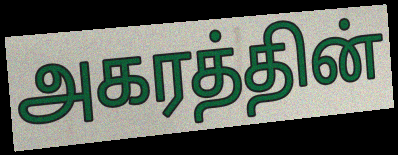
அகரத்தின்